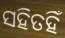
ସହିତହିଁ